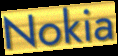
Nokia